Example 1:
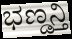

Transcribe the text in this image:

ಭಣ್ಡನ್ತಿ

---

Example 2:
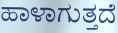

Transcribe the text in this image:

ಹಾಳಾಗುತ್ತದೆ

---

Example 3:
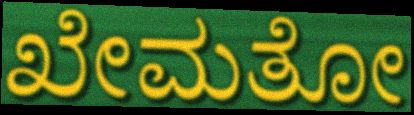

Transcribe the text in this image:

ಖೇಮತೋ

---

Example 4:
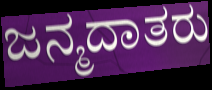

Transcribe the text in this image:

ಜನ್ಮದಾತರು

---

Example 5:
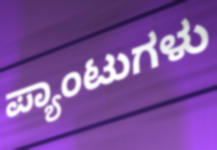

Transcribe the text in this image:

ಪ್ಯಾಂಟುಗಳು